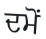
ਦਮੋਂ